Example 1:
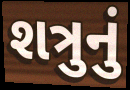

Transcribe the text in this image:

શત્રુનું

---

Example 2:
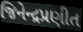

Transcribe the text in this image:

જિનેન્દ્રપ્રણીત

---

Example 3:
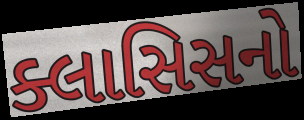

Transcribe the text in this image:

ક્લાસિસનો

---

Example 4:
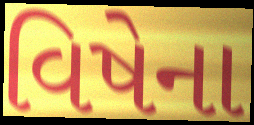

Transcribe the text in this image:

વિષેના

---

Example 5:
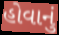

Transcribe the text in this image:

હોવાનું